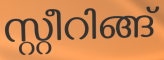
സ്റ്റീറിങ്ങ്